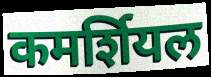
कमर्शियल